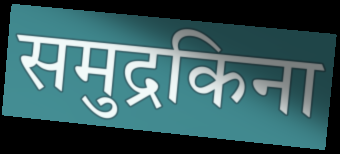
समुद्रकिना